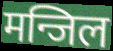
मन्जिल